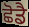
ਛੋਡੈ